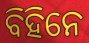
ବିହିନେ